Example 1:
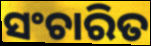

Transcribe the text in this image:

ସଂଚାରିତ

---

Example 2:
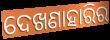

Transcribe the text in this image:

ଦେଖଣାହାରିର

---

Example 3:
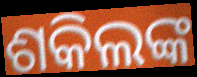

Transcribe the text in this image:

ଶକିଲଙ୍କ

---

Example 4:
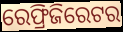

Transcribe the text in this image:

ରେଫ୍ରିଜିରେଟର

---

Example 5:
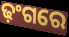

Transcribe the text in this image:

ଢ଼ଂଗରେ